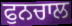
ਫੁਨਚਾਲ